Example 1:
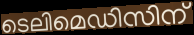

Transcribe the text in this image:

ടെലിമെഡിസിന്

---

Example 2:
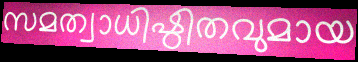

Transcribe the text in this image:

സമത്വാധിഷ്ഠിതവുമായ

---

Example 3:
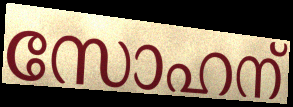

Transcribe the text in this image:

സോഹന്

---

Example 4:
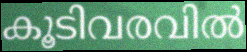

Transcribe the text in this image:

കൂടിവരവിൽ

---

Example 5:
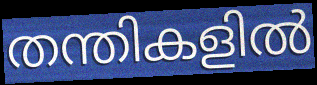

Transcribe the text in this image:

തന്തികളിൽ